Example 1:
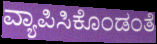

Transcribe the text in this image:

ವ್ಯಾಪಿಸಿಕೊಂಡಂತೆ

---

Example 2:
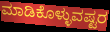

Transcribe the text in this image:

ಮಾಡಿಕೊಳ್ಳುವಷ್ಟರ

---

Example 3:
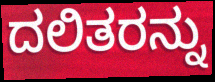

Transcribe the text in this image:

ದಲಿತರನ್ನು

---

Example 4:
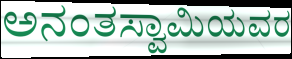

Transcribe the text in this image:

ಅನಂತಸ್ವಾಮಿಯವರ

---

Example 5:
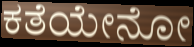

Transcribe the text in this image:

ಕತೆಯೇನೋ